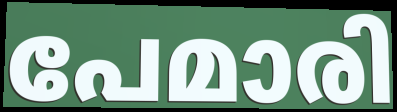
പേമാരി